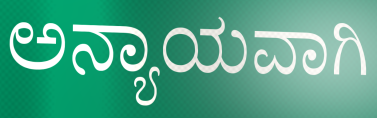
ಅನ್ಯಾಯವಾಗಿ